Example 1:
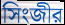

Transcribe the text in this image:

সিংজীর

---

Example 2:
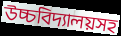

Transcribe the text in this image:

উচ্চবিদ্যালয়সহ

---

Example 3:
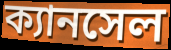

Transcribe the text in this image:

ক্যানসেল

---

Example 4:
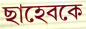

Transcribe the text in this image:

ছাহেবকে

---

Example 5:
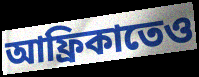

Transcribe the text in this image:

আফ্রিকাতেও